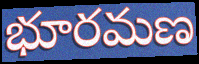
భూరమణ